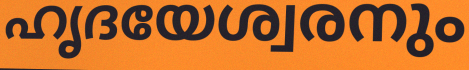
ഹൃദയേശ്വരനും